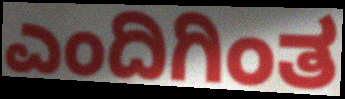
ಎಂದಿಗಿಂತ